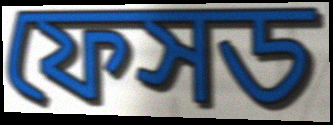
ফেসড